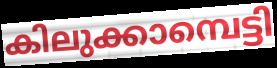
കിലുക്കാമ്പെട്ടി